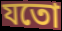
যতো